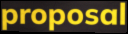
proposal